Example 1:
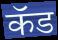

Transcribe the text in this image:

कॅड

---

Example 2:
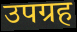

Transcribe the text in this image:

उपग्रह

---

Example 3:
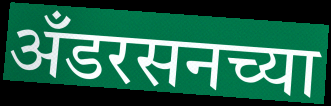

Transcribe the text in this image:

अँडरसनच्या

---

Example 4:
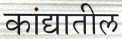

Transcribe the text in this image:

कांद्यातील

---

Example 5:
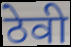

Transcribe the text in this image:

ठेवी